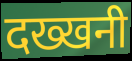
दख्खनी